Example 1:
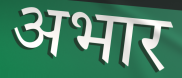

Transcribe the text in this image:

अभार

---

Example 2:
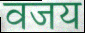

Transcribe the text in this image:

वजय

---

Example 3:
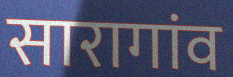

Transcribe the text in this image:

सारागांव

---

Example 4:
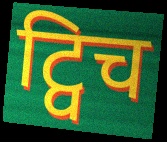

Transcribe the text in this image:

ट्विच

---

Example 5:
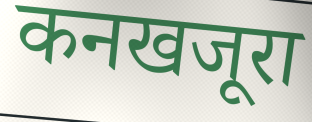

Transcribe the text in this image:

कनखजूरा